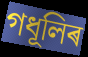
গধূলিৰ